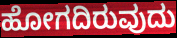
ಹೋಗದಿರುವುದು